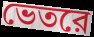
ভেতরে